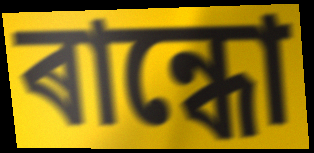
ৰান্ধো